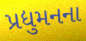
પ્રદ્યુમનના